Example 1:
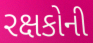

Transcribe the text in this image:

રક્ષકોની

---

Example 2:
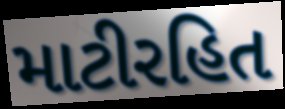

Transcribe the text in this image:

માટીરહિત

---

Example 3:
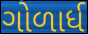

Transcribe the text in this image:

ગોળાર્ધ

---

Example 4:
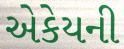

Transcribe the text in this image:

એકેયની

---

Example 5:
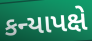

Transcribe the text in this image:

કન્યાપક્ષે